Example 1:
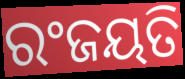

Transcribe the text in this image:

ରଂଜୟତି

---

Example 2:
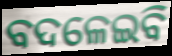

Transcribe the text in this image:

ବଦଳେଇବି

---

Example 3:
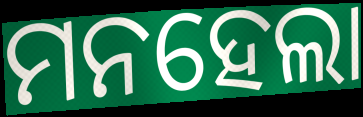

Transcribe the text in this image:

ମନହେଲା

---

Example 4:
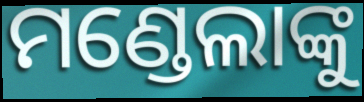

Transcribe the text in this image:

ମଣ୍ଡେଲାଙ୍କୁ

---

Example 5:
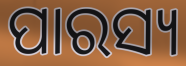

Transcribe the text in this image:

ପାରସ୍ୟ